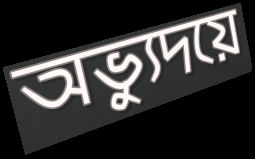
অভ্যুদয়ে